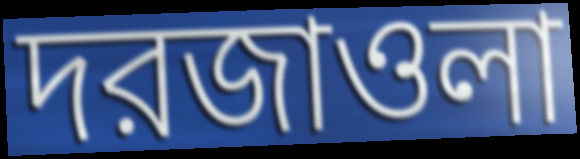
দরজাওলা